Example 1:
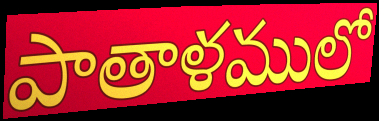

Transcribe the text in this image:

పాతాళములో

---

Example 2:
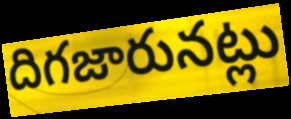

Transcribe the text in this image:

దిగజారునట్లు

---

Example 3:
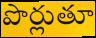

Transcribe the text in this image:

పొర్లుతూ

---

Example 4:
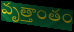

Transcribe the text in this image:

వృత్తాంతం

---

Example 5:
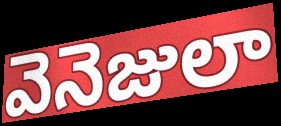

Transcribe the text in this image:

వెనెజులా